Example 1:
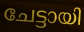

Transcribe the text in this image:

ചേട്ടായി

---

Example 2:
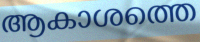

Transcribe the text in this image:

ആകാശത്തെ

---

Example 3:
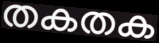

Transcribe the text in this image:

തകതക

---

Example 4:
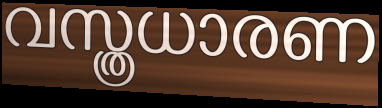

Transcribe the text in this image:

വസ്ത്രധാരണ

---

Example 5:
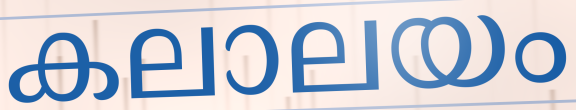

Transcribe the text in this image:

കലാലയം